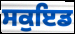
ਸਕੁਇਡ